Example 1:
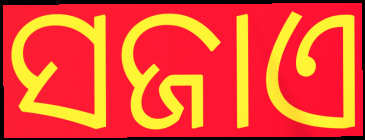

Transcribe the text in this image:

ସଜାଏ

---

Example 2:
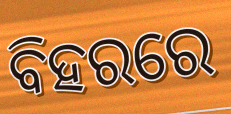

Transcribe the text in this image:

ବିହରରେ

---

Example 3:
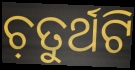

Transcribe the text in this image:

ଚ଼ତୁର୍ଥଟି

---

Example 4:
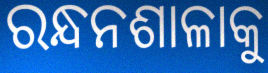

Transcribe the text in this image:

ରନ୍ଧନଶାଳାକୁ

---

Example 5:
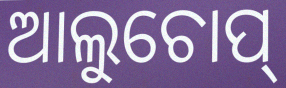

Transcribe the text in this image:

ଆଲୁଚୋପ୍